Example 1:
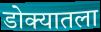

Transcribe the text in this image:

डोक्‍यातला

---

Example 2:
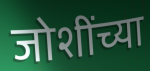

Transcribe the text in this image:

जोशींच्या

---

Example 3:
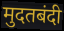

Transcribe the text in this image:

मुदतबंदी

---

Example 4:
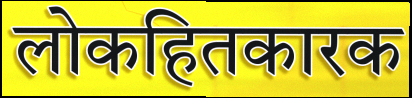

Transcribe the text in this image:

लोकहितकारक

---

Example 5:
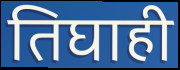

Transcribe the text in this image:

तिघाही